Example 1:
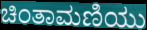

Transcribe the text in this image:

ಚಿಂತಾಮಣಿಯು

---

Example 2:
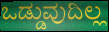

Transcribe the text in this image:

ಒಡ್ಡುವುದಿಲ್ಲ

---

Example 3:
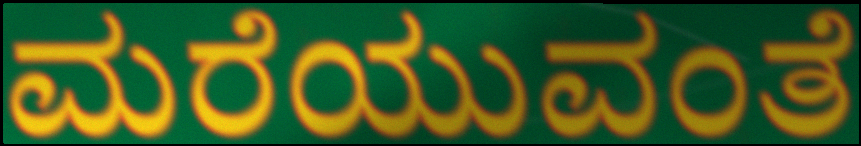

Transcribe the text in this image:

ಮರೆಯುವಂತೆ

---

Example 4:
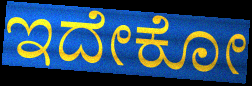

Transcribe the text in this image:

ಇದೇಕೋ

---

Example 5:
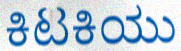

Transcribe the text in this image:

ಕಿಟಕಿಯು